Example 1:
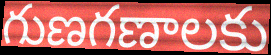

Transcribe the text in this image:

గుణగణాలకు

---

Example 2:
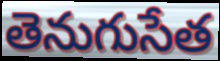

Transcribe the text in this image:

తెనుగుసేత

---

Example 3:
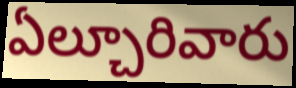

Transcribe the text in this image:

ఏల్చూరివారు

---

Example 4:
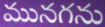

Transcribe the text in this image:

మునగను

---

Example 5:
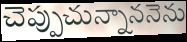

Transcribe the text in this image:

చెప్పుచున్నాననెను